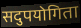
सदुपयोगिता